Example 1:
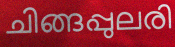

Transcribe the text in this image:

ചിങ്ങപ്പുലരി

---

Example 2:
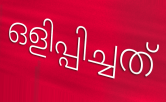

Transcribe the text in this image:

ഒളിപ്പിച്ചത്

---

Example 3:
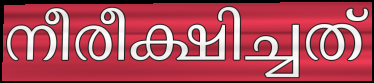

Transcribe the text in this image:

നീരീക്ഷിച്ചത്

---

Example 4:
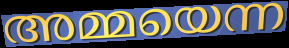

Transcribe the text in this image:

അമ്മയെന്ന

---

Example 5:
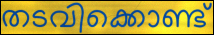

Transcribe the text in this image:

തടവിക്കൊണ്ട്